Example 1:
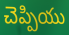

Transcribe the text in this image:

చెప్పియు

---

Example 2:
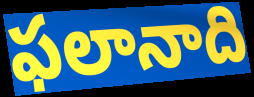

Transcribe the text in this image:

ఫలానాది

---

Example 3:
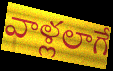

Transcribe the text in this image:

వాళ్లలాగే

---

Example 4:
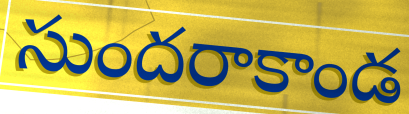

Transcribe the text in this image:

సుందరాకాండ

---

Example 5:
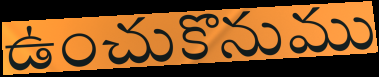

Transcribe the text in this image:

ఉంచుకొనుము